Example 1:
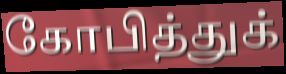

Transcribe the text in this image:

கோபித்துக்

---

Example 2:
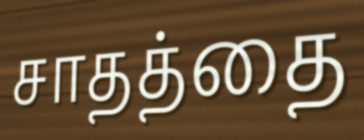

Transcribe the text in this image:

சாதத்தை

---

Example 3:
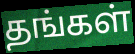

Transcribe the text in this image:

தங்கள்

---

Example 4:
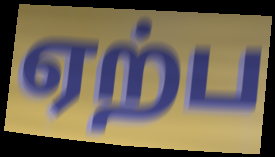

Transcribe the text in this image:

ஏற்ப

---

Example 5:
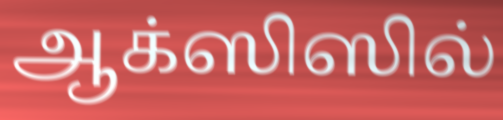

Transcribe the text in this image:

ஆக்ஸிஸில்